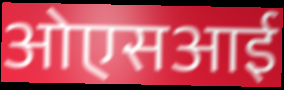
ओएसआई